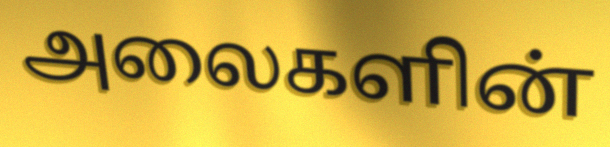
அலைகளின்